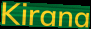
Kirana